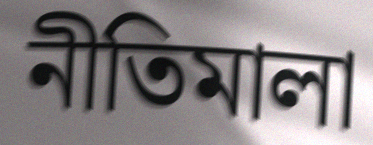
নীতিমালা